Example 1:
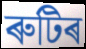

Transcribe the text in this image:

ৰুটিৰ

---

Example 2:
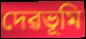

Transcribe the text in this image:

দেৱভূমি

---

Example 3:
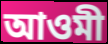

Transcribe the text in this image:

আওমী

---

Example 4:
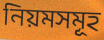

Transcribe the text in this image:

নিয়মসমূহ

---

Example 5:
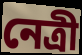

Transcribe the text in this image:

নেত্ৰী